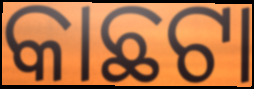
କାଛଟା